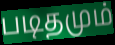
படிதமும்